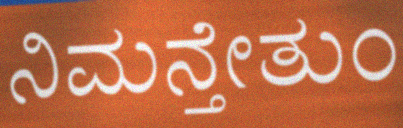
ನಿಮನ್ತೇತುಂ